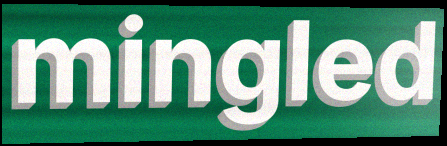
mingled